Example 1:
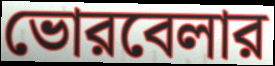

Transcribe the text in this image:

ভোরবেলার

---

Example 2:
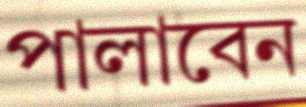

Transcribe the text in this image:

পালাবেন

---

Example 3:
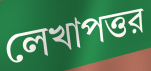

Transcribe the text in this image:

লেখাপত্তর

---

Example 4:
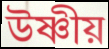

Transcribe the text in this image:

উষ্ণীয়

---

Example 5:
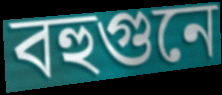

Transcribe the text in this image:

বহুগুনে